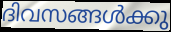
ദിവസങ്ങൾക്കു